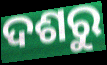
ଦଶରୁ